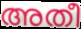
അതീ